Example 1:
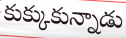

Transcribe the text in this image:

కుక్కుకున్నాడు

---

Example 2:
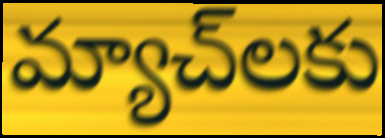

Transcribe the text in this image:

మ్యాచ్‌లకు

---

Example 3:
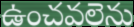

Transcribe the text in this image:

ఉంచవలెను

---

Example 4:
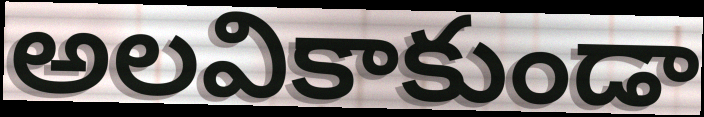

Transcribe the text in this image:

అలవికాకుండా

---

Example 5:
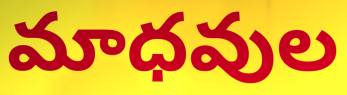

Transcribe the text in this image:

మాధవుల